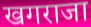
खगराजा